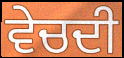
ਵੇਚਦੀ